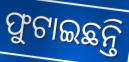
ଫୁଟାଇଛନ୍ତି